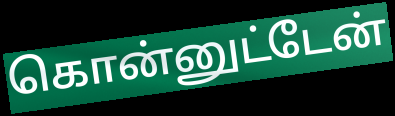
கொன்னுட்டேன்